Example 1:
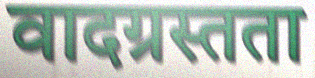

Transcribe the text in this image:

वादग्रस्तता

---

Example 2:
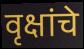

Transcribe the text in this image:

वृक्षांचे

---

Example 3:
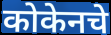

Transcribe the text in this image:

कोकेनचे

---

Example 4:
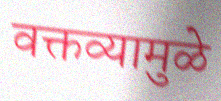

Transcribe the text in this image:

वक्तव्यामुळे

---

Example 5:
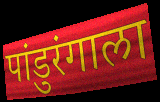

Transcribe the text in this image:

पांडुरंगाला